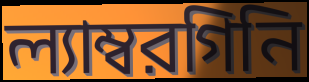
ল্যাম্বরগিনি